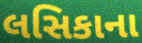
લસિકાના